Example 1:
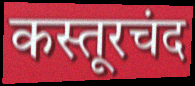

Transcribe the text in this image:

कस्तूरचंद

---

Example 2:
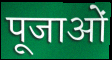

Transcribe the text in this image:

पूजाओं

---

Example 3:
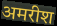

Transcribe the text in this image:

अमरीश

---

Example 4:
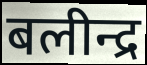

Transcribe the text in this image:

बलीन्द्र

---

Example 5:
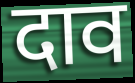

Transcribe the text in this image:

दाव